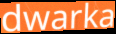
dwarka